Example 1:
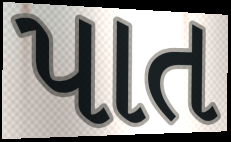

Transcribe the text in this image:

પાત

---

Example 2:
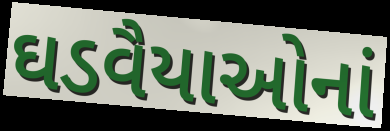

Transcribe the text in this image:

ઘડવૈયાઓનાં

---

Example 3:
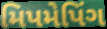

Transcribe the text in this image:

મિપમેપિંગ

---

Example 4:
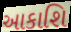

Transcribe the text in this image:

આકાશિ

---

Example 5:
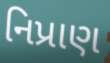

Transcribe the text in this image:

નિપ્રાણ